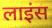
लाइंस